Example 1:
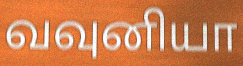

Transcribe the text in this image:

வவுனியா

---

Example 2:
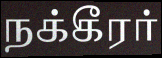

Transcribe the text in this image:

நக்கீரர்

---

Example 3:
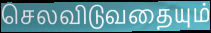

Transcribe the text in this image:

செலவிடுவதையும்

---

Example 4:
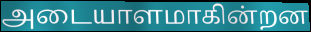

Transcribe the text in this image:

அடையாளமாகின்றன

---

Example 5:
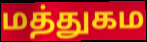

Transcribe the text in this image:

மத்துகம